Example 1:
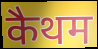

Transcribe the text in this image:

कैथम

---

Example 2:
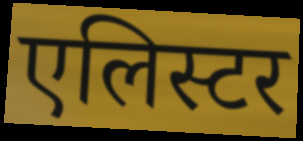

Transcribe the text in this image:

एलिस्टर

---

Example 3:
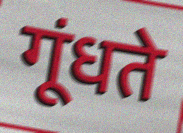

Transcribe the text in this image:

गूंधते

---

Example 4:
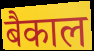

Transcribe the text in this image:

बैकाल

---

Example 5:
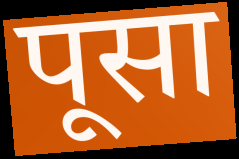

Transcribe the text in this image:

पूसा